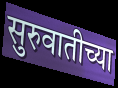
सुरुवातीच्या